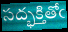
సద్భక్తితోఁ